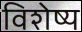
विशेष्य